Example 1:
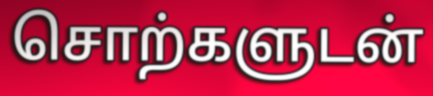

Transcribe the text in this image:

சொற்களுடன்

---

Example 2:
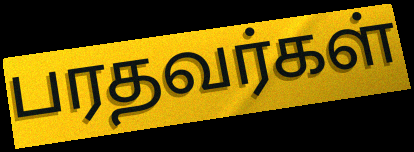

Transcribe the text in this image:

பரதவர்கள்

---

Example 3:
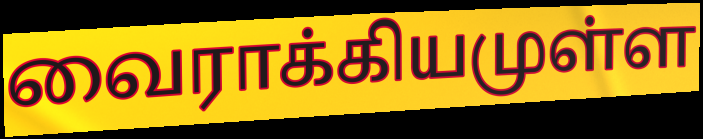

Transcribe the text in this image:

வைராக்கியமுள்ள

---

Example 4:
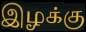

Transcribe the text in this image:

இழக்கு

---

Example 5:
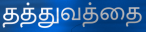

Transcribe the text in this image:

தத்துவத்தை